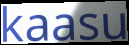
kaasu